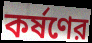
কর্ষণের